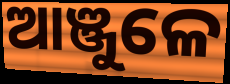
ଆଞ୍ଜୁଳେ